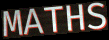
MATHS